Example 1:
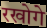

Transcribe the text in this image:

रखोगे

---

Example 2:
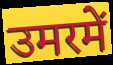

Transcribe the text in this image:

उमरमें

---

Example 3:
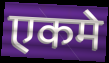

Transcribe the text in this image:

एकमे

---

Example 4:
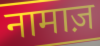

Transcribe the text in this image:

नामाज़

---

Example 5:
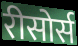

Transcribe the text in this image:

रीसोर्स